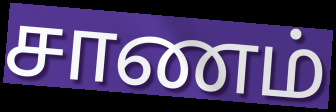
சாணம்